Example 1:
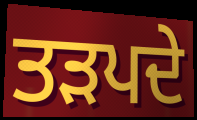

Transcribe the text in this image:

ਤੜਪਦੇ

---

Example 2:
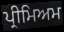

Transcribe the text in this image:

ਪ੍ਰੀਮਿਅਮ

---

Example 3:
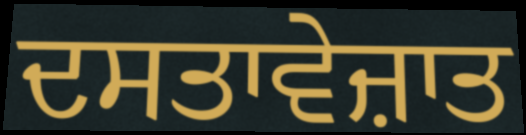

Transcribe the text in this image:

ਦਸਤਾਵੇਜ਼ਾਤ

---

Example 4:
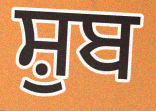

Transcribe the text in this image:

ਸ਼ੁਬ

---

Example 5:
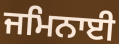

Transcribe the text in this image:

ਜਮਿਨਾਈ